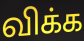
விக்க